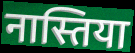
नास्तिया